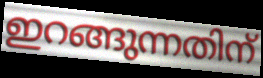
ഇറങ്ങുന്നതിന്